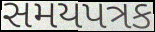
સમયપત્રક